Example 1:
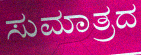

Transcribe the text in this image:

ಸುಮಾತ್ರದ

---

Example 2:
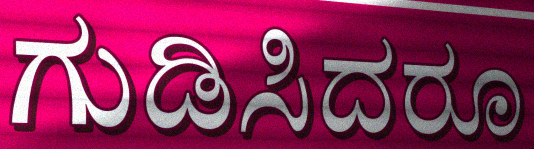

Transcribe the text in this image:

ಗುಡಿಸಿದರೂ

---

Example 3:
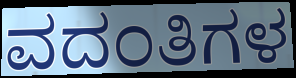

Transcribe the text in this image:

ವದಂತಿಗಳ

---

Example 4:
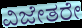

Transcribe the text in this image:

ವಿಜೇತರೇ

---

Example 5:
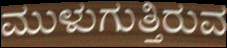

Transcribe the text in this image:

ಮುಳುಗುತ್ತಿರುವ